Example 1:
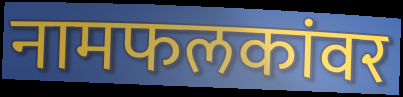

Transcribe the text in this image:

नामफलकांवर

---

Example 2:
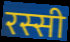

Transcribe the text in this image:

रस्सी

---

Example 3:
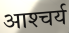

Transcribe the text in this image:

आश्‍चर्य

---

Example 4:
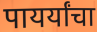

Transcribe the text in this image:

पायर्यांचा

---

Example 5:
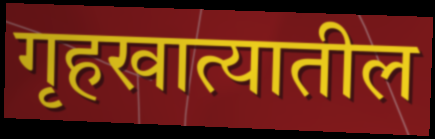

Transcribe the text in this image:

गृहखात्यातील